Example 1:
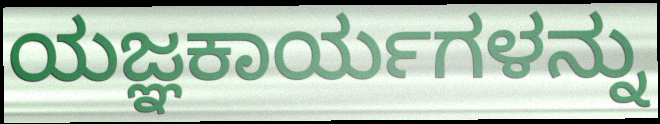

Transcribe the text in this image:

ಯಜ್ಞಕಾರ್ಯಗಳನ್ನು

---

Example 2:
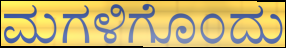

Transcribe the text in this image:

ಮಗಳಿಗೊಂದು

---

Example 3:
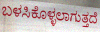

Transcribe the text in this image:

ಬಳಸಿಕೊಳ್ಳಲಾಗುತ್ತದೆ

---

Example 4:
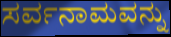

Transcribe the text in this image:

ಸರ್ವನಾಮವನ್ನು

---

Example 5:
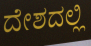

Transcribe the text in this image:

ದೇಶದಲ್ಲಿ